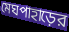
মেঘপাহাড়ের